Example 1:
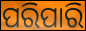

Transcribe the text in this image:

ପରିପାରି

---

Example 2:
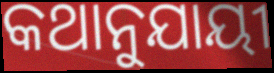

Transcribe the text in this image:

କଥାନୁଯାୟୀ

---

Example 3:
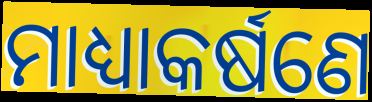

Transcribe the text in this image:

ମାଧ୍ୟାକର୍ଷଣେ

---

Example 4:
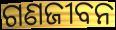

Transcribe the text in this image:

ଗଣଜୀବନ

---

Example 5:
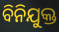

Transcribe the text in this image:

ବିନିଯୁକ୍ତ